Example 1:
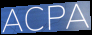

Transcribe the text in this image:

ACPA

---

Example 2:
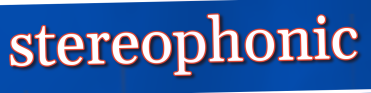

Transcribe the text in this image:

stereophonic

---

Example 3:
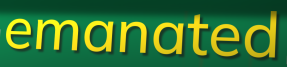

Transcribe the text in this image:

emanated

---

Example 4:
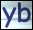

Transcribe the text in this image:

yb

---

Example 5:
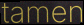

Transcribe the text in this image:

tamen